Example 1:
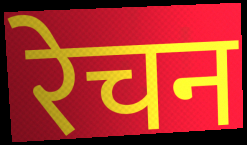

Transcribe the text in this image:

रेचन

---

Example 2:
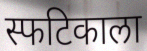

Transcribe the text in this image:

स्फटिकाला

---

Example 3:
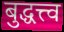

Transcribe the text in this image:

बुद्धत्त्व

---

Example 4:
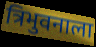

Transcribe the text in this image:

त्रिभुवनाला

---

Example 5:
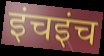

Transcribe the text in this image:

इंचइंच